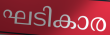
ഘടികാര